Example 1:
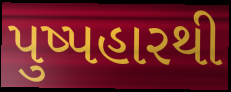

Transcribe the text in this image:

પુષ્પહારથી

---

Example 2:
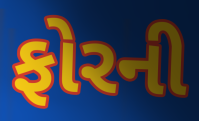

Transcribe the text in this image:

ફોરની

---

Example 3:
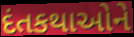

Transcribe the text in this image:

દંતકથાઓને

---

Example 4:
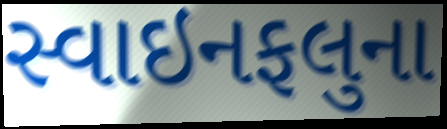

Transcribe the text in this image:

સ્વાઇનફલુના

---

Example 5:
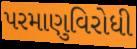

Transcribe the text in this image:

પરમાણુવિરોધી